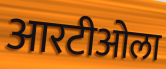
आरटीओला